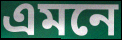
এমনে